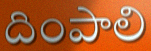
దింపాలి